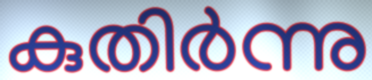
കുതിർന്നു